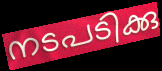
നടപടിക്കു